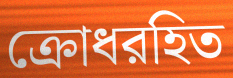
ক্রোধরহিত